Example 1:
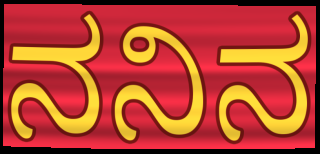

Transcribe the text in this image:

ನನಿನ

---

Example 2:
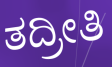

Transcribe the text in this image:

ತದ್ರೀತಿ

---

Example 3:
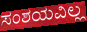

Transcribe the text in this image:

ಸಂಶಯವಿಲ್ಲ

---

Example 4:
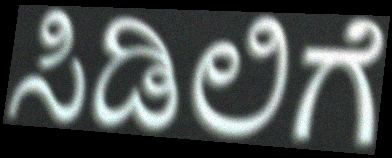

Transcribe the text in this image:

ಸಿಡಿಲಿಗೆ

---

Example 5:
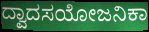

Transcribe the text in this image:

ದ್ವಾದಸಯೋಜನಿಕಾ